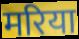
मरिया